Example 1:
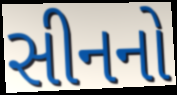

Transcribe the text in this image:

સીનનો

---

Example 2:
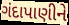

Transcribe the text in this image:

ગંદાપાણીને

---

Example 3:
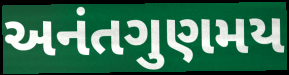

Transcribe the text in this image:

અનંતગુણમય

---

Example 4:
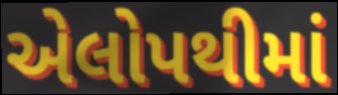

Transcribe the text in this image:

એલોપથીમાં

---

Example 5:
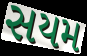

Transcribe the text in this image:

સયમ